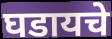
घडायचे